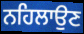
ਨਹਿਲਾਉਣ